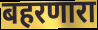
बहरणारा